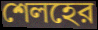
শেলহের